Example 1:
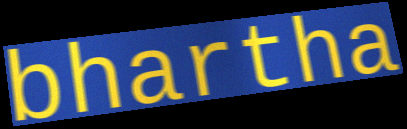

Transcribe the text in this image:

bhartha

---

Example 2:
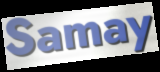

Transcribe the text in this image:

Samay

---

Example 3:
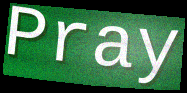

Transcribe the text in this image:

Pray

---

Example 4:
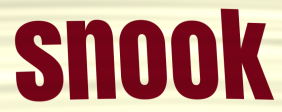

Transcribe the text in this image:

snook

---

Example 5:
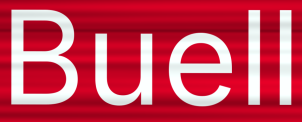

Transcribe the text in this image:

Buell